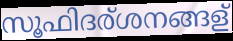
സൂഫിദര്ശനങ്ങള്